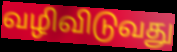
வழிவிடுவது